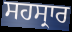
ਸਹਸ੍ਰਾਰ